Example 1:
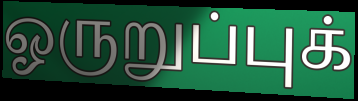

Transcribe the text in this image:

ஓருறுப்புக்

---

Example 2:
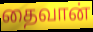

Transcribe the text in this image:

தைவான்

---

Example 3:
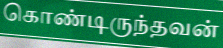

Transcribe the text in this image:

கொண்டிருந்தவன்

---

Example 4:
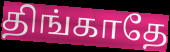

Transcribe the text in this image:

திங்காதே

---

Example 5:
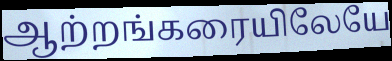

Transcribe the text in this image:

ஆற்றங்கரையிலேயே